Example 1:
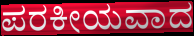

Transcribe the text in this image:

ಪರಕೀಯವಾದ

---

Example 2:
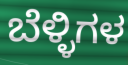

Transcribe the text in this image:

ಬೆಳ್ಳಿಗಳ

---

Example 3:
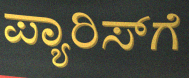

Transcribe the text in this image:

ಪ್ಯಾರಿಸ್‍ಗೆ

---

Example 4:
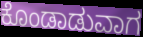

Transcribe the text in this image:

ಕೊಂಡಾಡುವಾಗ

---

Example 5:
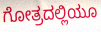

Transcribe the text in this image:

ಗೋತ್ರದಲ್ಲಿಯೂ